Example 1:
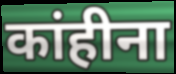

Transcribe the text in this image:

कांहीना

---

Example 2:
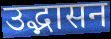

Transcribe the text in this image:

उद्भासन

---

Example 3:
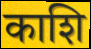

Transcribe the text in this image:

काशि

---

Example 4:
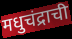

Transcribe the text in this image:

मधुचंद्राची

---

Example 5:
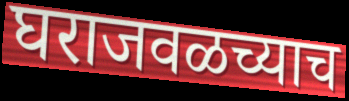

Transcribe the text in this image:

घराजवळच्याच